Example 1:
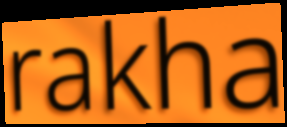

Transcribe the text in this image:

rakha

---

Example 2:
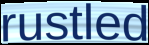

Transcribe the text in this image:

rustled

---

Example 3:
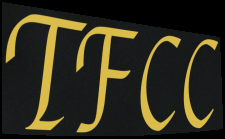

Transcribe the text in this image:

TFCC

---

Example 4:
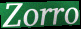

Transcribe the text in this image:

Zorro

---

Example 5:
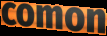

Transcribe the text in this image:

comon